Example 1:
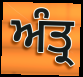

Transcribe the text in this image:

ਅੰਤ੍ਰ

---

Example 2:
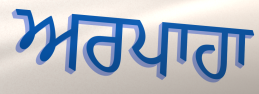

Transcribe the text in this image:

ਅਰਪਾਹਾ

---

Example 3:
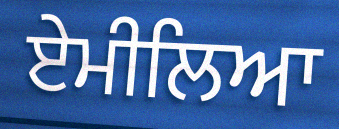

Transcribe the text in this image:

ਏਮੀਲਿਆ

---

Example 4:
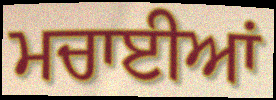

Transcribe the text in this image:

ਮਚਾਈਆਂ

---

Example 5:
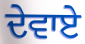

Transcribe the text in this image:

ਦੇਵਾਏ